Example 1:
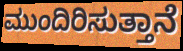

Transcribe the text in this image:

ಮುಂದಿರಿಸುತ್ತಾನೆ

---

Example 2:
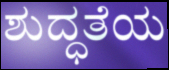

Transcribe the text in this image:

ಶುದ್ಧತೆಯ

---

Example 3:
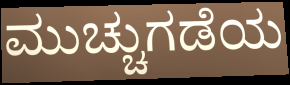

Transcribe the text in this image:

ಮುಚ್ಚುಗಡೆಯ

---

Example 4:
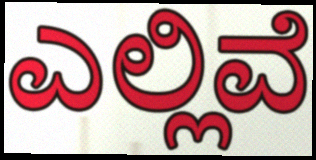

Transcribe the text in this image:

ಎಲ್ಲಿವೆ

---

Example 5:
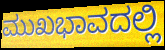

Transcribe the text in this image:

ಮುಖಭಾವದಲ್ಲಿ